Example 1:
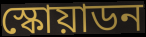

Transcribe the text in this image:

স্কোয়াডন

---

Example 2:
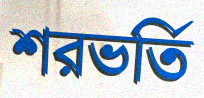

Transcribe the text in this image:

শরভর্তি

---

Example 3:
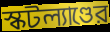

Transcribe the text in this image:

স্কটল্যাণ্ডের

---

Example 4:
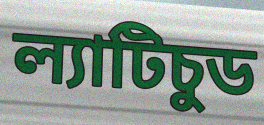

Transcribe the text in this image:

ল্যাটিচুড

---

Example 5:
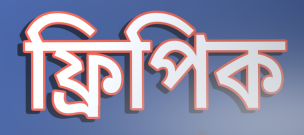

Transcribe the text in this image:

ফ্রিপিক